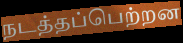
நடத்தப்பெற்றன